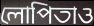
লোপিতাও